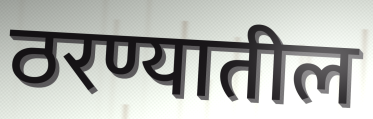
ठरण्यातील